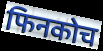
फिनकोच